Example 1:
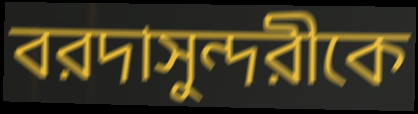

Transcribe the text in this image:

বরদাসুন্দরীকে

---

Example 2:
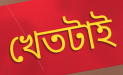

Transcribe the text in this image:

খেতটাই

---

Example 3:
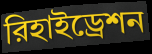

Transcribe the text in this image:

রিহাইড্রেশন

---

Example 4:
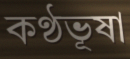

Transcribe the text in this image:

কণ্ঠভূষা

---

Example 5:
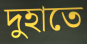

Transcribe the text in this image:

দুহাতে